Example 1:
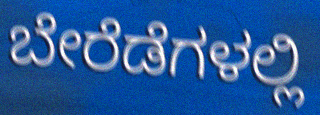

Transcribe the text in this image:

ಬೇರೆಡೆಗಳಲ್ಲಿ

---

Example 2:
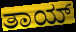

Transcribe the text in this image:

ತಾಯ್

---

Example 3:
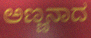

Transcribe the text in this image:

ಅಣ್ಣನಾದ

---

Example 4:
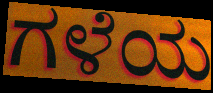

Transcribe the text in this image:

ಗಳೆಯ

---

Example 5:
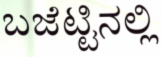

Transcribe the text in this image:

ಬಜೆಟ್ಟಿನಲ್ಲಿ